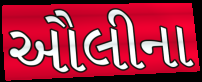
ઔલીના